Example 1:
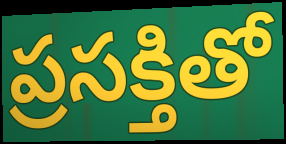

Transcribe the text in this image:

ప్రసక్తితో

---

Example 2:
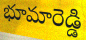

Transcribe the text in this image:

భూమారెడ్డి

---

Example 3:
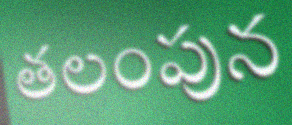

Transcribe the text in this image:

తలంపున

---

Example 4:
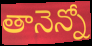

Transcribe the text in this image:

తానెన్నో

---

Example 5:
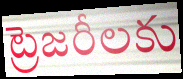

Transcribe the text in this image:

ట్రెజరీలకు